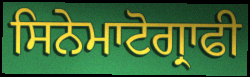
ਸਿਨੇਮਾਟੋਗ੍ਰਾਫੀ